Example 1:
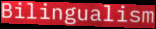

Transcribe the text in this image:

Bilingualism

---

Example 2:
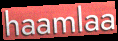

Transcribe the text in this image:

haamlaa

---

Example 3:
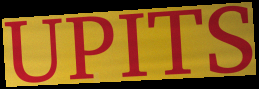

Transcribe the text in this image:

UPITS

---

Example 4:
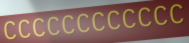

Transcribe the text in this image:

CCCCCCCCCCCC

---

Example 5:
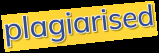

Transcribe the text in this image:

plagiarised